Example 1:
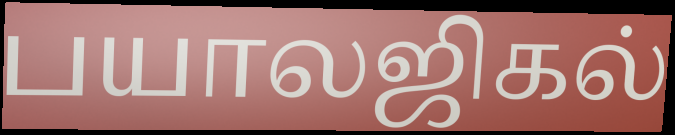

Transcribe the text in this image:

பயாலஜிகல்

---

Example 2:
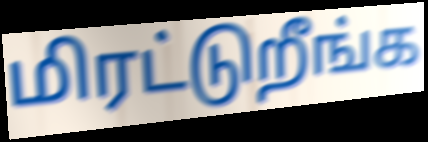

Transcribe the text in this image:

மிரட்டுறீங்க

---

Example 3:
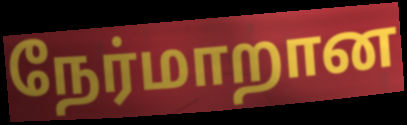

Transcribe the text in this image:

நேர்மாறான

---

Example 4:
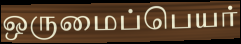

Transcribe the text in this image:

ஒருமைப்பெயர்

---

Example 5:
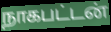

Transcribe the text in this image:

நாகபட்டன்